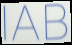
IAB